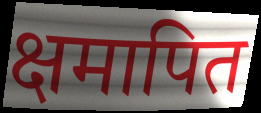
क्षमापित